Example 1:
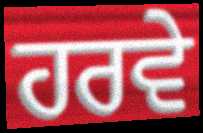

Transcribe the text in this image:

ਹਰਵੇ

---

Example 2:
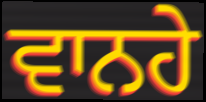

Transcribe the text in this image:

ਵਾਨਹੇ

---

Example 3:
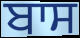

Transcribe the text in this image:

ਬਾਸ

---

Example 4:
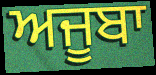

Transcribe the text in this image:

ਅਜੂਬਾ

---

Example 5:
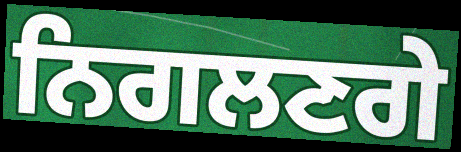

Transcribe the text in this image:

ਨਿਗਲਣਗੇ